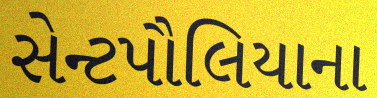
સેન્ટપૌલિયાના